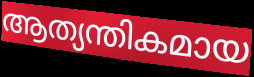
ആത്യന്തികമായ